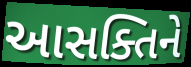
આસક્તિને